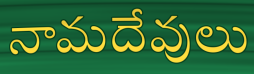
నామదేవులు